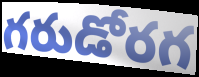
గరుడోరగ